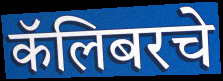
कॅलिबरचे